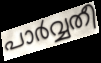
പാർവ്വതീ